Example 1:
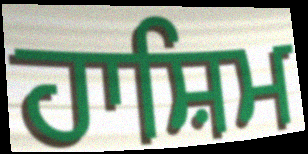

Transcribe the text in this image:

ਹਾਸ਼ਿਮ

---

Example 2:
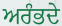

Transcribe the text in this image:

ਅਰੰਭਦੇ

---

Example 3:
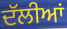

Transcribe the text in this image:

ਦੱਲੀਆਂ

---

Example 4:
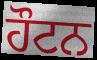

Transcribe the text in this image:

ਹੌਟਨ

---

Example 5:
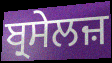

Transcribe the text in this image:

ਬ੍ਰਸੇਲਜ਼